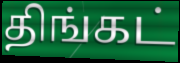
திங்கட்